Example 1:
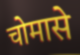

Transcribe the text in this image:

चोमासे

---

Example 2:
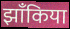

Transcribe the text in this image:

झाँकिया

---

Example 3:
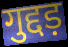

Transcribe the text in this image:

गुद्दड़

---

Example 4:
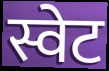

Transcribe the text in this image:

स्वेट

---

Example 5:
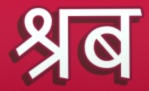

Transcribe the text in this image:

श्रब